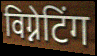
विग्नेटिंग